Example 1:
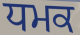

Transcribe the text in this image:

ਧਮਕ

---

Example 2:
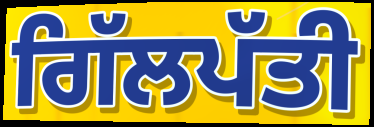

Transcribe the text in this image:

ਗਿੱਲਪੱਤੀ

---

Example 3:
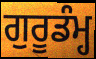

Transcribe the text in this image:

ਗੁਰੂਡੰਮ੍ਹ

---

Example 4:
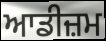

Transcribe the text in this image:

ਆਡੀਜ਼ਮ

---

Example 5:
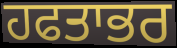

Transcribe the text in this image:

ਹਫਤਾਭਰ